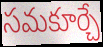
సమకూర్చే